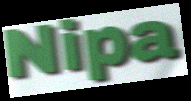
Nipa